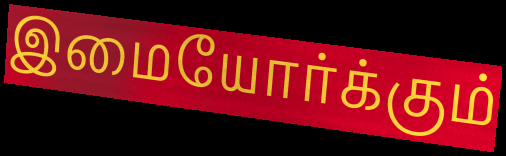
இமையோர்க்கும்